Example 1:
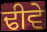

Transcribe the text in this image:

ਢੀਵੇ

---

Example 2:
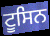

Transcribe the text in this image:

ਟੂਸਿਨ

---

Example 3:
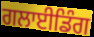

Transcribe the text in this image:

ਗਲਾਈਡਿੰਗ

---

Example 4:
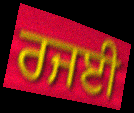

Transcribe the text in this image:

ਰਜਈ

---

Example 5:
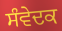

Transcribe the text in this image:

ਸੰਵੇਦਕ